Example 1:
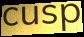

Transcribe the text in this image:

cusp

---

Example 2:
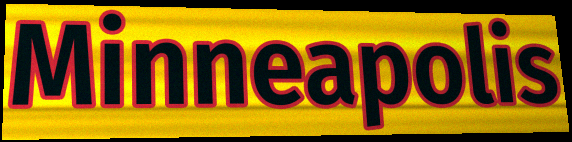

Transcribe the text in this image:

Minneapolis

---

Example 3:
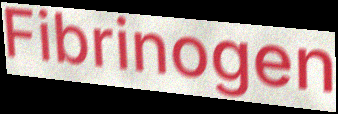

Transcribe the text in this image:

Fibrinogen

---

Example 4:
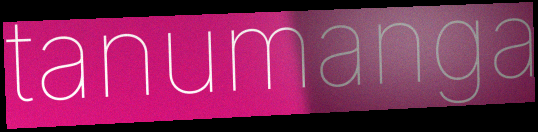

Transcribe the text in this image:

tanumanga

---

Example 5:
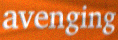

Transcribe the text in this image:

avenging